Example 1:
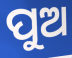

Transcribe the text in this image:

ପୁଅ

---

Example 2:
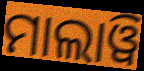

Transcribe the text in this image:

ମାଲାୱି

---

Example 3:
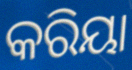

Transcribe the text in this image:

କରିୟା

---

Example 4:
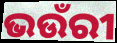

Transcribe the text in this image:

ଭଉଁରୀ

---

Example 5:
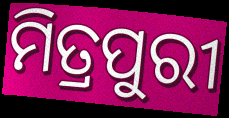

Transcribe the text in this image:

ମିତ୍ରପୁରୀ